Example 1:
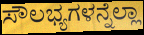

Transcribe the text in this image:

ಸೌಲಭ್ಯಗಳನ್ನೆಲ್ಲಾ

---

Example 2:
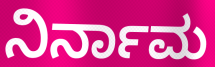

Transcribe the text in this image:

ನಿರ್ನಾಮ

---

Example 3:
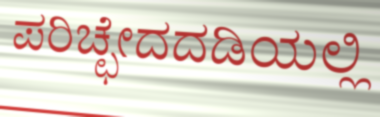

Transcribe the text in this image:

ಪರಿಚ್ಛೇದದಡಿಯಲ್ಲಿ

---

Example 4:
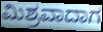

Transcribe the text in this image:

ಮಿಶ್ರವಾದಾಗ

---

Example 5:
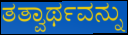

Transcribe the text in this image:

ತತ್ವಾರ್ಥವನ್ನು